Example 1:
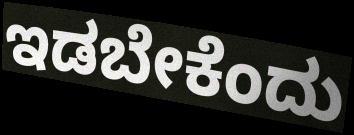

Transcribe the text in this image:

ಇಡಬೇಕೆಂದು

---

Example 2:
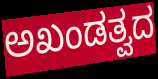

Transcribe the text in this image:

ಅಖಂಡತ್ವದ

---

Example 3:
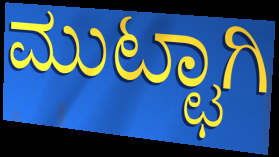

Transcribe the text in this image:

ಮುಟ್ಟಾಗಿ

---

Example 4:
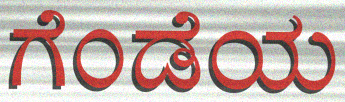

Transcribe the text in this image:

ಗೆಂಡೆಯ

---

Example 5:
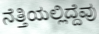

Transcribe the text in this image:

ನೆತ್ತಿಯಲ್ಲಿದ್ದೆವು